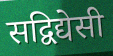
सद्विद्येसी